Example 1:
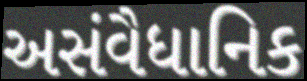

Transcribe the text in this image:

અસંવૈધાનિક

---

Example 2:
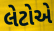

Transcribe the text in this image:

લેટોએ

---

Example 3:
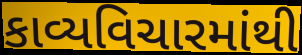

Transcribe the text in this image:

કાવ્યવિચારમાંથી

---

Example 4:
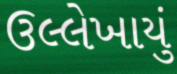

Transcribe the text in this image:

ઉલ્લેખાયું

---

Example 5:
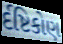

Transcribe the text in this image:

ર્દષ્ટિકોણ